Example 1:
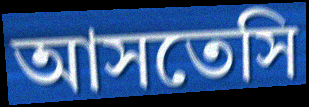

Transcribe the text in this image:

আসতেসি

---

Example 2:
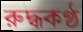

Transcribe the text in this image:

রুদ্ধকণ্ঠ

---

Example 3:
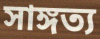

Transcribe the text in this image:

সাঙ্গত্য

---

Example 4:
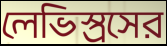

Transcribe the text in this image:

লেভিস্ত্রসের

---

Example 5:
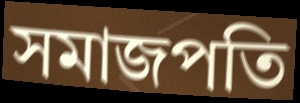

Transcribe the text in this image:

সমাজপতি